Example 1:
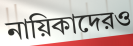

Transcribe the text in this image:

নায়িকাদেরও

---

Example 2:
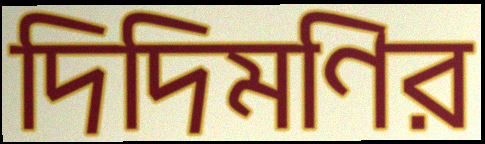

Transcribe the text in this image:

দিদিমণির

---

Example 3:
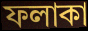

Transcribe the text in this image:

ফলাকা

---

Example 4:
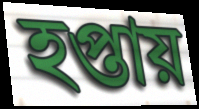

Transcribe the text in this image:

হপ্তায়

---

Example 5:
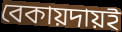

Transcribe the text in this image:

বেকায়দায়ই